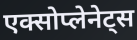
एक्सोप्लेनेट्स